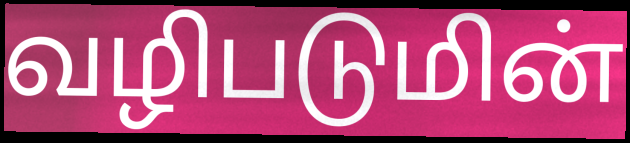
வழிபடுமின்